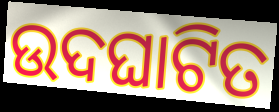
ଉଦଘାଟିତ